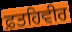
ਫ਼ਤਹਿਵੀਰ